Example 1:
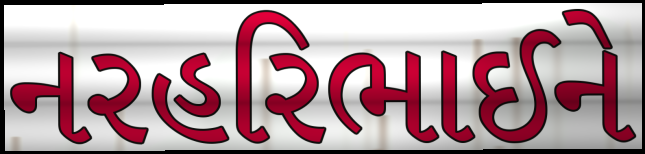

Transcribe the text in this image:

નરહરિભાઈને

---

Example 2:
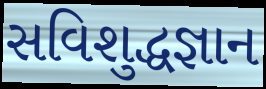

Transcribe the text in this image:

સવિશુદ્ધજ્ઞાન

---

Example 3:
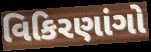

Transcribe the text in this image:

વિકિરણાંગો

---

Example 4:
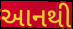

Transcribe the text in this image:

આનથી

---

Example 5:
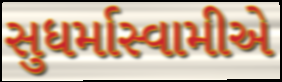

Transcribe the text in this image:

સુધર્માસ્વામીએ